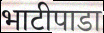
भाटीपाडा